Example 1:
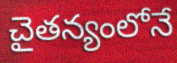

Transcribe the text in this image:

చైతన్యంలోనే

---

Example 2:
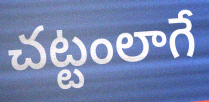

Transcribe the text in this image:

చట్టంలాగే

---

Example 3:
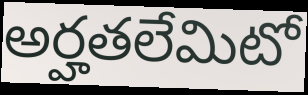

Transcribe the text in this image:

అర్హతలేమిటో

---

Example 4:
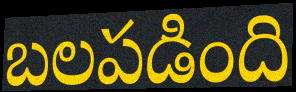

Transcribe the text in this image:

బలపడింది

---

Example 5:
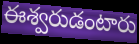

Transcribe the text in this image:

ఈశ్వరుడంటారు